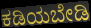
ಕಡಿಯಬೇಡಿ